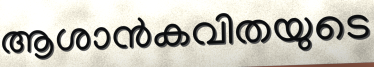
ആശാൻകവിതയുടെ